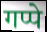
गप्पे